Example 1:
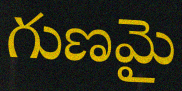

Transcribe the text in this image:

గుణమై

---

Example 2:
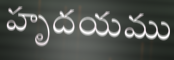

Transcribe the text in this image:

హృదయము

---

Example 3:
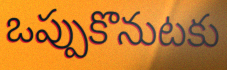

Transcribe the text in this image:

ఒప్పుకొనుటకు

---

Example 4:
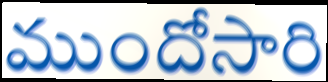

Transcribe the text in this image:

ముందోసారి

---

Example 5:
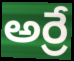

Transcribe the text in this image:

అర్రే